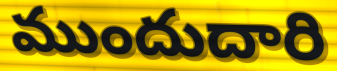
ముందుదారి